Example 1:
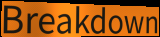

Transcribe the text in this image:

Breakdown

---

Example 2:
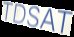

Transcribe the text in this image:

TDSAT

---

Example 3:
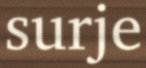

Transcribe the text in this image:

surje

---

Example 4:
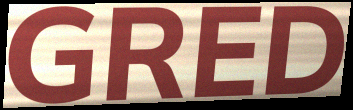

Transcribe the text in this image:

GRED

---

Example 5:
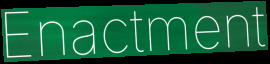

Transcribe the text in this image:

Enactment